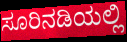
ಸೂರಿನಡಿಯಲ್ಲಿ